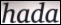
hada